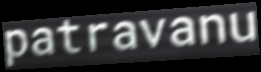
patravanu